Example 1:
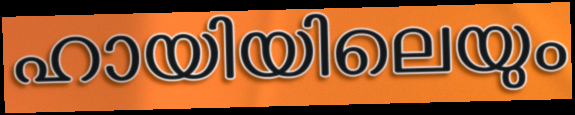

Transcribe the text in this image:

ഹായിയിലെയും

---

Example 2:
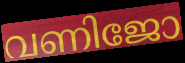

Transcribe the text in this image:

വണിജോ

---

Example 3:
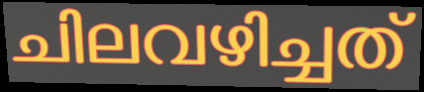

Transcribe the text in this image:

ചിലവഴിച്ചത്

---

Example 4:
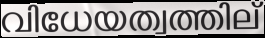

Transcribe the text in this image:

വിധേയത്വത്തില്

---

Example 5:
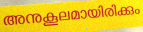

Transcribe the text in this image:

അനുകൂലമായിരിക്കും